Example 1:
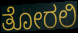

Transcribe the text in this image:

ತೋರಲಿ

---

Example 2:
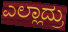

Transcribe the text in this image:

ಎಲ್ಲಾದ್ರು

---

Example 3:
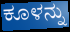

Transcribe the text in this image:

ಕೂಳನ್ನು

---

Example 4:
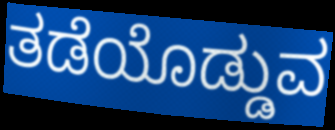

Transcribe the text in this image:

ತಡೆಯೊಡ್ಡುವ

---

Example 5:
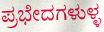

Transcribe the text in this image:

ಪ್ರಭೇದಗಳುಳ್ಳ